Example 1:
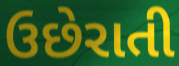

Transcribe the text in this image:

ઉછેરાતી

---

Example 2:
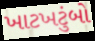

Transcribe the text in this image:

ખાટખટુંબો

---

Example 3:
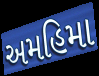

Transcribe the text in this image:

અમહિમા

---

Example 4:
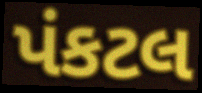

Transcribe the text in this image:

પંકટલ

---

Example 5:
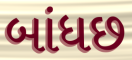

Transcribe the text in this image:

બાંધછ